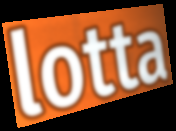
lotta